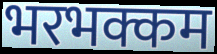
भरभक्कम